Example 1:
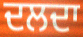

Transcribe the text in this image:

ਦਲਦਾ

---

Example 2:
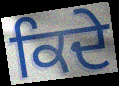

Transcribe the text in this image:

ਕਿਦੇ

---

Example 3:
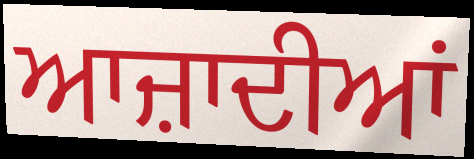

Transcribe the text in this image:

ਆਜ਼ਾਦੀਆਂ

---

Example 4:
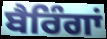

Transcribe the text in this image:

ਬੈਰਿੰਗਾਂ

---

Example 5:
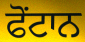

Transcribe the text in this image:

ਫੋਂਟਾਨ